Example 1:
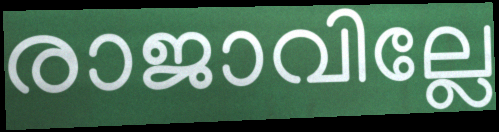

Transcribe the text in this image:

രാജാവില്ലേ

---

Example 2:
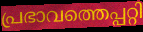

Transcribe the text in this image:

പ്രഭാവത്തെപ്പറ്റി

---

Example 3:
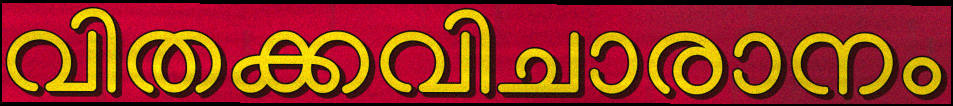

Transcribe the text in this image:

വിതക്കവിചാരാനം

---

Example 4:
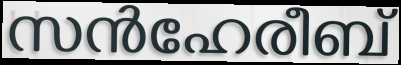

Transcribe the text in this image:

സൻഹേരീബ്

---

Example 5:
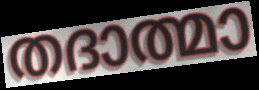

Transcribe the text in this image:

തദാത്മാ